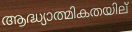
ആദ്ധ്യാത്മികതയില്